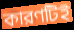
কারণটিই